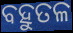
ବହୁତଳ